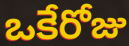
ఒకేరోజు